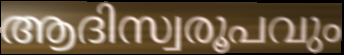
ആദിസ്വരൂപവും